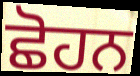
ਛੋਹਨ